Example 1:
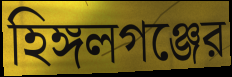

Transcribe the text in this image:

হিঙ্গলগঞ্জের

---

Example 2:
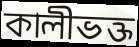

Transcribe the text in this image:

কালীভক্ত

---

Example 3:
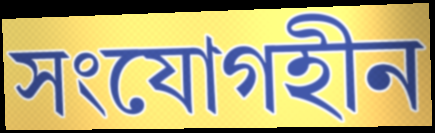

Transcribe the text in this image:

সংযোগহীন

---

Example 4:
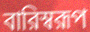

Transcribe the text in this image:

বারিস্বরূপ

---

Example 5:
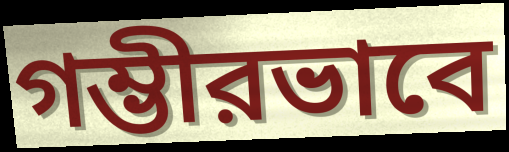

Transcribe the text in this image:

গম্ভীরভাবে